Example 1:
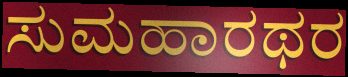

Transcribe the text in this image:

ಸುಮಹಾರಥರ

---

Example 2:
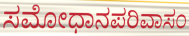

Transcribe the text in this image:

ಸಮೋಧಾನಪರಿವಾಸಂ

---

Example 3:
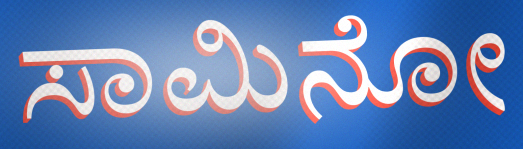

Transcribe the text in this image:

ಸಾಮಿನೋ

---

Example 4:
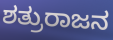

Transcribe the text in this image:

ಶತ್ರುರಾಜನ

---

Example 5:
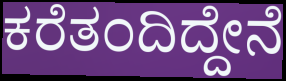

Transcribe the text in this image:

ಕರೆತಂದಿದ್ದೇನೆ